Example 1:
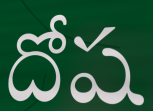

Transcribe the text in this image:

దోష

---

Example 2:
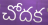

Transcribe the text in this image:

చోదక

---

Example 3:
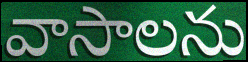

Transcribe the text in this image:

వాసాలను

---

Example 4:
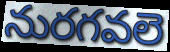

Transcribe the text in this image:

నురగవలె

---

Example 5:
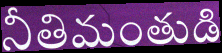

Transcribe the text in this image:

నీతిమంతుడి